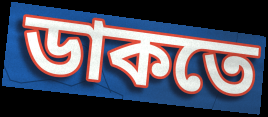
ডাকতে